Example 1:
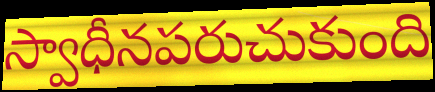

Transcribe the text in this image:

స్వాధీనపరుచుకుంది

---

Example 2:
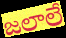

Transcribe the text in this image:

జలాలే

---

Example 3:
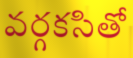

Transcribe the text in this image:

వర్గకసితో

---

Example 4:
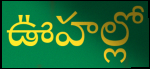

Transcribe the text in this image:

ఊహల్లో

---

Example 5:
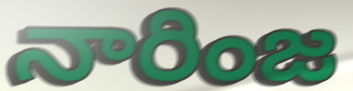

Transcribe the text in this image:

నారింజ